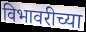
विभावरीच्या